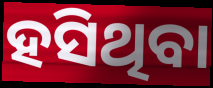
ହସିଥିବା